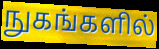
நுகங்களில்